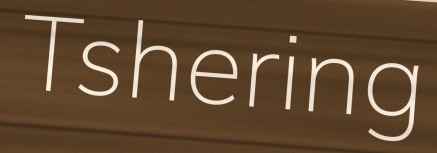
Tshering